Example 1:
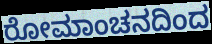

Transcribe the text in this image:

ರೋಮಾಂಚನದಿಂದ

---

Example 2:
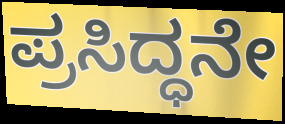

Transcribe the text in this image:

ಪ್ರಸಿದ್ಧನೇ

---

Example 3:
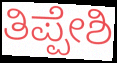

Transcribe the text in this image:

ತಿಪ್ಪೇಶಿ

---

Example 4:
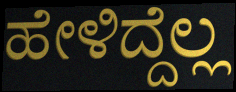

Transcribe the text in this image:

ಹೇಳಿದ್ದೆಲ್ಲ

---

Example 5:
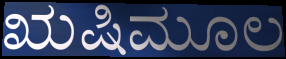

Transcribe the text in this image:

ಋಷಿಮೂಲ